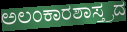
ಅಲಂಕಾರಶಾಸ್ತ್ರದ